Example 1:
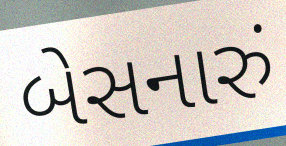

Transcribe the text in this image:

બેસનારું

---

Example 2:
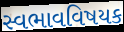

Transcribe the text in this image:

સ્વભાવવિષયક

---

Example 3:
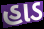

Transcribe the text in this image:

હાડ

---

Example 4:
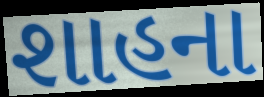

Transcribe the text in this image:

શાહના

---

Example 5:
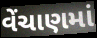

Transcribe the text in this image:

વેંચાણમાં